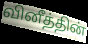
வினீத்தின்